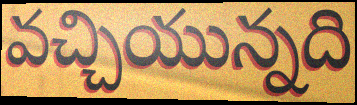
వచ్చియున్నది